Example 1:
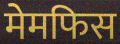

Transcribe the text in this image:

मेमफिस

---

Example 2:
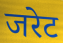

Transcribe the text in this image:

जरेट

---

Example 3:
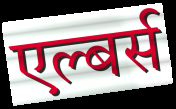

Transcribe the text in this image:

एल्बर्स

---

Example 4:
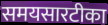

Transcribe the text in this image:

समयसारटीका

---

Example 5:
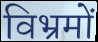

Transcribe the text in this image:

विभ्रमों